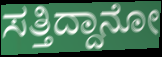
ಸತ್ತಿದ್ದಾನೋ